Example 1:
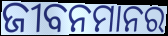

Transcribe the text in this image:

ଜୀବନମାନର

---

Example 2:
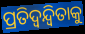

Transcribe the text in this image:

ପ୍ରତିଦ୍ୱନ୍ଦ୍ୱିତାକୁ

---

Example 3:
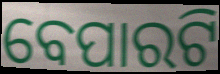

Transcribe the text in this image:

ବେପାରଟି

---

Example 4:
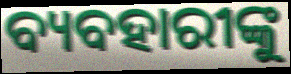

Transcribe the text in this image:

ବ୍ୟବହାରୀଙ୍କୁ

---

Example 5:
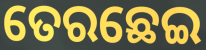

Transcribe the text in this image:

ତେରଛେଇ